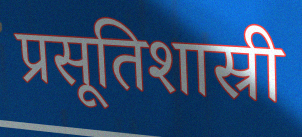
प्रसूतिशास्री